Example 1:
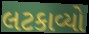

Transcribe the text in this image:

લટકાવ્યો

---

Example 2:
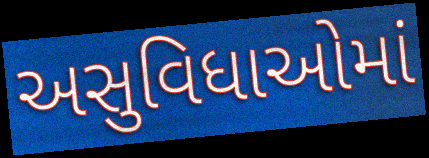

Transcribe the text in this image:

અસુવિધાઓમાં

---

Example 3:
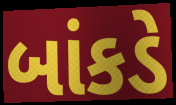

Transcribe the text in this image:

બાંકડે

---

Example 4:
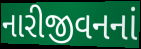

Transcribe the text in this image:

નારીજીવનનાં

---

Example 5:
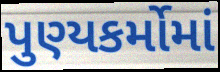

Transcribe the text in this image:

પુણ્યકર્મોમાં